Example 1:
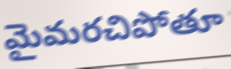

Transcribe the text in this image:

మైమరచిపోతూ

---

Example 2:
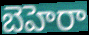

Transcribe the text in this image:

బెహెరా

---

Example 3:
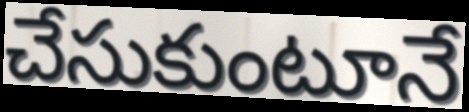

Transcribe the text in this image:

చేసుకుంటూనే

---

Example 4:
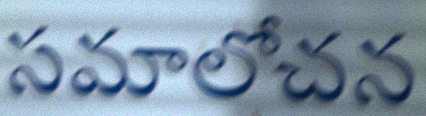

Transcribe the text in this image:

సమాలోచన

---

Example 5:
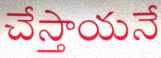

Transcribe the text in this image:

చేస్తాయనే